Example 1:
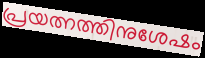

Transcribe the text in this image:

പ്രയത്നത്തിനുശേഷം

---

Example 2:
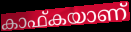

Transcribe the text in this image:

കാഫ്കയാണ്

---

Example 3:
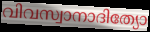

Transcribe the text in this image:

വിവസ്വാനാദിത്യോ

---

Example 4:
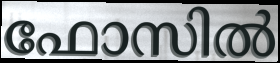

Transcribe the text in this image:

ഫോസിൽ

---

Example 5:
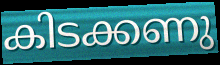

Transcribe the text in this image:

കിടക്കണു